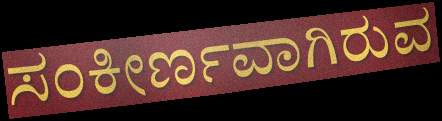
ಸಂಕೀರ್ಣವಾಗಿರುವ